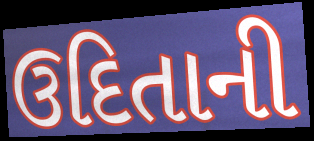
ઉદિતાની